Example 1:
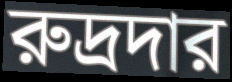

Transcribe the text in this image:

রুদ্রদার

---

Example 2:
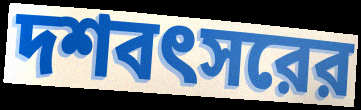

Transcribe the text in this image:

দশবৎসরের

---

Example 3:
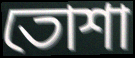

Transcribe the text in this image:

তোশা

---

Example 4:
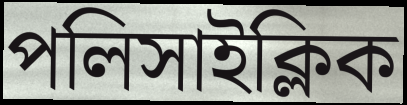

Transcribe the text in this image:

পলিসাইক্লিক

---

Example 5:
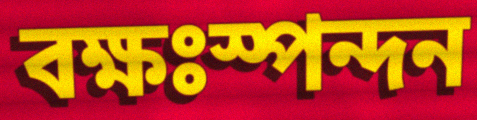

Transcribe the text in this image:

বক্ষঃস্পন্দন